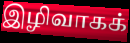
இழிவாகக்